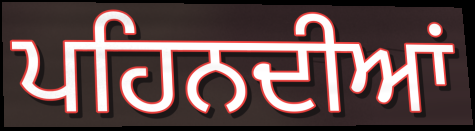
ਪਹਿਨਦੀਆਂ